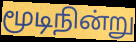
மூடிநின்று